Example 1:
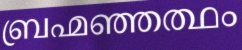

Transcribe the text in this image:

ബ്രഹ്മഞ്ഞത്ഥം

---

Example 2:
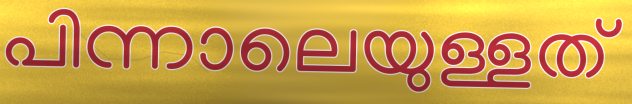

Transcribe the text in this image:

പിന്നാലെയുള്ളത്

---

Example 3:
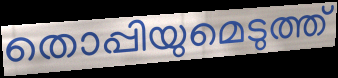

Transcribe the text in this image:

തൊപ്പിയുമെടുത്ത്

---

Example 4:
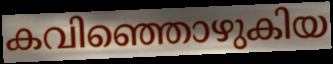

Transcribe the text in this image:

കവിഞ്ഞൊഴുകിയ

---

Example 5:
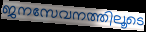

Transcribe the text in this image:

ജനസേവനത്തിലൂടെ